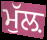
ਮੁੱਲ਼